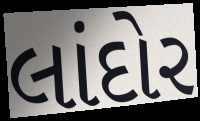
લાંદોર